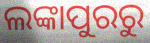
ଲଙ୍କାପୁରରୁ